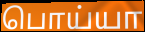
பொய்யா